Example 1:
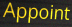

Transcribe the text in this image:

Appoint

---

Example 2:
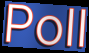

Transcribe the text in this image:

Poll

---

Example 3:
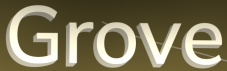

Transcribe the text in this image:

Grove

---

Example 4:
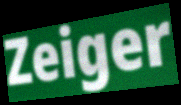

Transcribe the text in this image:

Zeiger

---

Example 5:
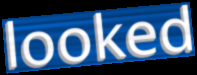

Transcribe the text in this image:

looked